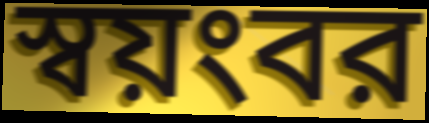
স্বয়ংবর